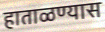
हाताळण्यास